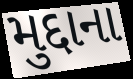
મુદ્દાના